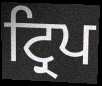
ਟ੍ਰਿਪ